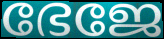
ഭേജേ